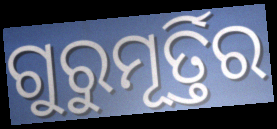
ଗୁରୁମୂର୍ତ୍ତିର